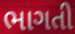
ભાગતી